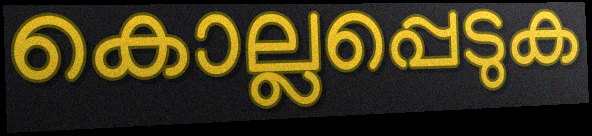
കൊല്ലപ്പെടുക